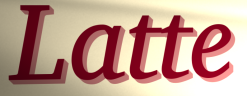
Latte